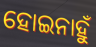
ହୋଇନାହୁଁ